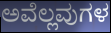
ಅವೆಲ್ಲವುಗಳ